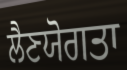
ਲੈਣਯੋਗਤਾ